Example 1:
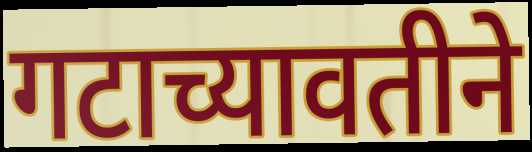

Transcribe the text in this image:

गटाच्यावतीने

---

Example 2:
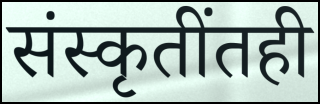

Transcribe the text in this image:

संस्कृतींतही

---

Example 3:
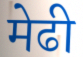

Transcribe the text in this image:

मेढी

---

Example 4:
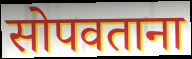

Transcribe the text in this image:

सोपवताना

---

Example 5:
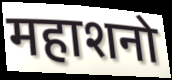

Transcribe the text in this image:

महाशनो